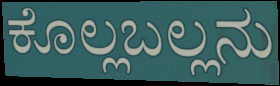
ಕೊಲ್ಲಬಲ್ಲನು